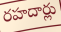
రహదార్లు